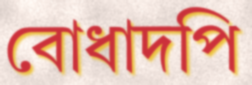
বোধাদপি